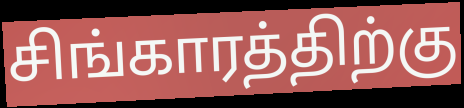
சிங்காரத்திற்கு